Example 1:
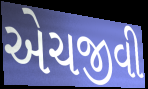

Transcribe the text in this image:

એચજીવી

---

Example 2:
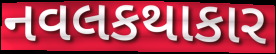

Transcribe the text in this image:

નવલકથાકાર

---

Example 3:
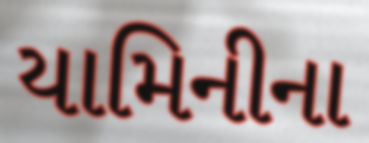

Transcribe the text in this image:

યામિનીના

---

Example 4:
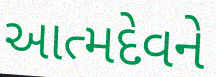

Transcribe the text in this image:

આત્મદેવને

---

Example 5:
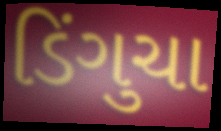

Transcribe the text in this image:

ડિંગુચા